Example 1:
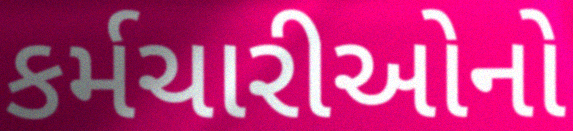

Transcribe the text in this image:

કર્મચારીઓનો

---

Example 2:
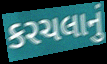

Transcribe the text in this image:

કરચલાનું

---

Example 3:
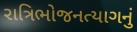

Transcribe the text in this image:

રાત્રિભોજનત્યાગનું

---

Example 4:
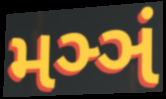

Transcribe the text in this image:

મઞ્ઞં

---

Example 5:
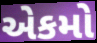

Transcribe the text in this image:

એકમો